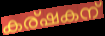
കര്ഷകന്